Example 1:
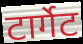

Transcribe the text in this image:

टार्गेट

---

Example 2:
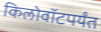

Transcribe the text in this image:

किलोवॉटपर्यंत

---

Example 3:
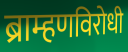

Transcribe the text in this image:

ब्राम्हणविरोधी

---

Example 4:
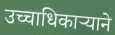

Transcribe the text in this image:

उच्चाधिकाऱ्याने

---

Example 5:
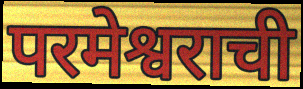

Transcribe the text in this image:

परमेश्वराची